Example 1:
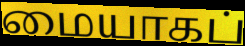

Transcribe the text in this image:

மையாகப்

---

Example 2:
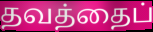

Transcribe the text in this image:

தவத்தைப்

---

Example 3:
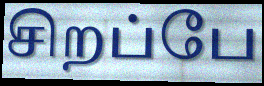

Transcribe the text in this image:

சிறப்பே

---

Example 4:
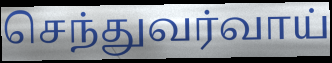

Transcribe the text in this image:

செந்துவர்வாய்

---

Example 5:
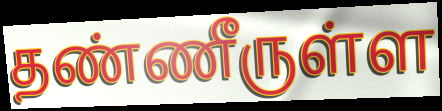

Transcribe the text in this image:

தண்ணீருள்ள